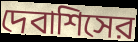
দেবাশিসের